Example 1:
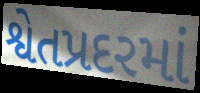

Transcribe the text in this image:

શ્વેતપ્રદરમાં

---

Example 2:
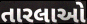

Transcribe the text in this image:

તારલાઓ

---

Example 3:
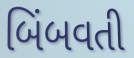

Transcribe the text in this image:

બિંબવતી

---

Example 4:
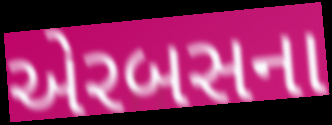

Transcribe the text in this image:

એરબસના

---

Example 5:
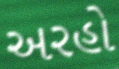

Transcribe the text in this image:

અરહો